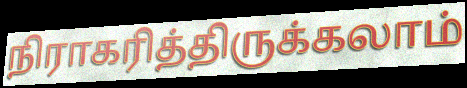
நிராகரித்திருக்கலாம்